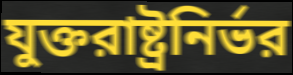
যুক্তরাষ্ট্রনির্ভর